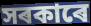
সৰকাৰে